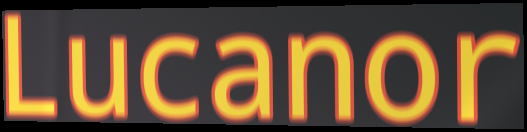
Lucanor